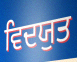
ਵਿਦਯੁਤ